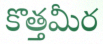
కొత్తమీర